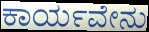
ಕಾರ್ಯವೇನು